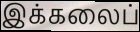
இக்கலைப்